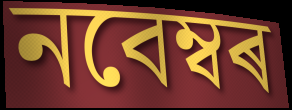
নবেম্বৰ